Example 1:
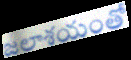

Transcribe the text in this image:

జలాశయంతో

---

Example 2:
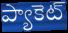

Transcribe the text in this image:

ప్యాకెట్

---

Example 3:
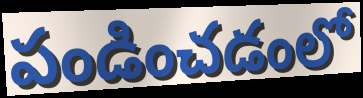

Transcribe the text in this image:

పండించడంలో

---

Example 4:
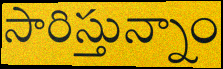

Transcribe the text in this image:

సారిస్తున్నాం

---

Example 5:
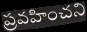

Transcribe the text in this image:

ప్రవహించని